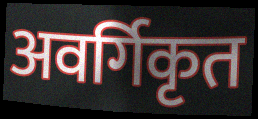
अवर्गिकृत